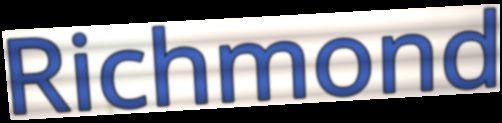
Richmond